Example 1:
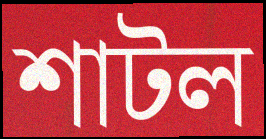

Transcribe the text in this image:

শাটল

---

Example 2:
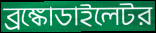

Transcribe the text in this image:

ব্রঙ্কোডাইলেটর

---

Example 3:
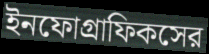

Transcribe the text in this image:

ইনফোগ্রাফিকসের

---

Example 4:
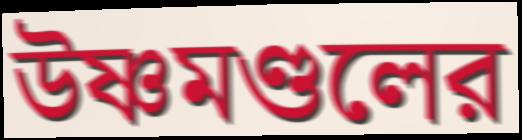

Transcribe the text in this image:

উষ্ণমণ্ডলের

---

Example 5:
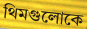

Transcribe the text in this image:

থিমগুলোকে